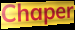
Chaper